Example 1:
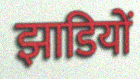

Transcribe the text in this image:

झाडियों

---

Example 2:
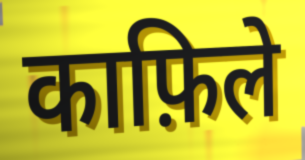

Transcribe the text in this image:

काफ़िले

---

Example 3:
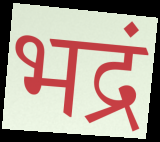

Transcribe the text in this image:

भद्रं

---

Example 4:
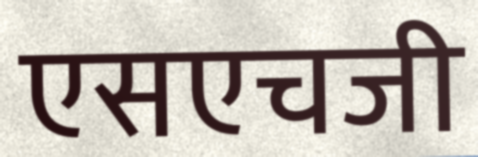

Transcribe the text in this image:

एसएचजी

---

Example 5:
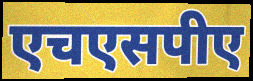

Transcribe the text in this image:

एचएसपीए